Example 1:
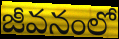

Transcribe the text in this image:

జీవనంలో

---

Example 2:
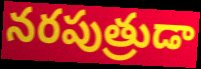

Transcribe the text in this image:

నరపుత్రుడా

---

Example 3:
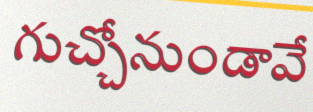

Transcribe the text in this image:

గుచ్చోనుండావే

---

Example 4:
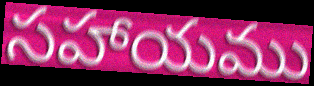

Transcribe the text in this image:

సహాయము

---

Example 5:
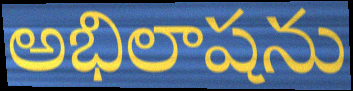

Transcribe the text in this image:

అభిలాషను